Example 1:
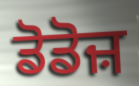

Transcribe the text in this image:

ਡੋਡੋਜ਼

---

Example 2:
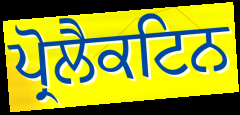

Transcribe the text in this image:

ਪ੍ਰੋਲੈਕਟਿਨ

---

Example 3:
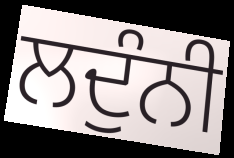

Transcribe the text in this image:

ਲਦੁੰਨੀ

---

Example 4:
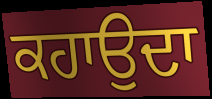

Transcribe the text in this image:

ਕਹਾਉਦਾ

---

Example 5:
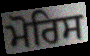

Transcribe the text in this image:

ਮੋਰਿਸ